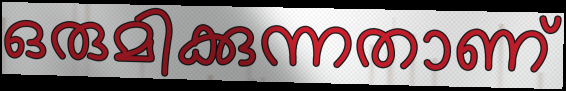
ഒരുമിക്കുന്നതാണ്